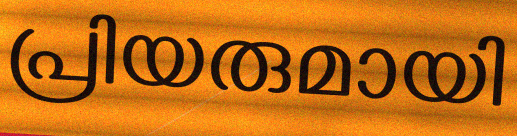
പ്രിയരുമായി